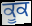
ਕੂਕ